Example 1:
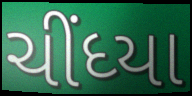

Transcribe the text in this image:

ચીંધ્યા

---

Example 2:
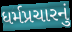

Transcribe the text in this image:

ધર્મપ્રચારનું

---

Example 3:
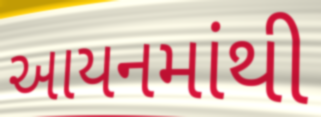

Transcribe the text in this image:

આયનમાંથી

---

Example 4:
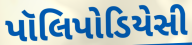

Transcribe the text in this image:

પૉલિપોડિયેસી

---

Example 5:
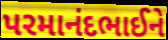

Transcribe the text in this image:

પરમાનંદભાઈને